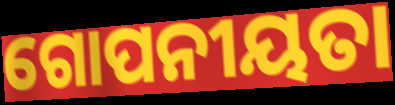
ଗୋପନୀୟତା